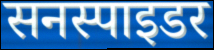
सनस्पाइडर